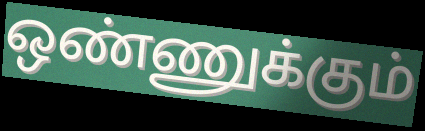
ஒண்ணுக்கும்